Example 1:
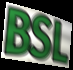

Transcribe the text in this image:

BSL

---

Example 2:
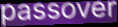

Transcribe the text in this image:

passover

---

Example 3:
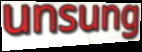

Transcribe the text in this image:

unsung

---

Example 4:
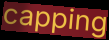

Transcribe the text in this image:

capping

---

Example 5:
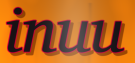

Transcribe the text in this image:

inuu